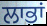
ਲਾਭਾਂ